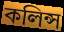
কলিন্স